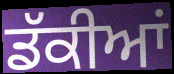
ਡੱਕੀਆਂ